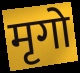
मृगो